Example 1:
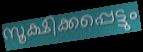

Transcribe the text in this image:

സൂക്ഷിക്കപ്പെട്ടും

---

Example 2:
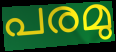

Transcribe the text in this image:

പരമു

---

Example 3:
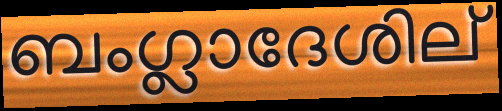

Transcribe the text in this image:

ബംഗ്ലാദേശില്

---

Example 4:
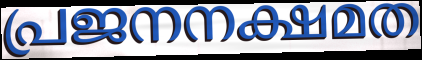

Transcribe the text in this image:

പ്രജനനക്ഷമത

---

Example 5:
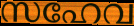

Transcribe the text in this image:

സഹേവ